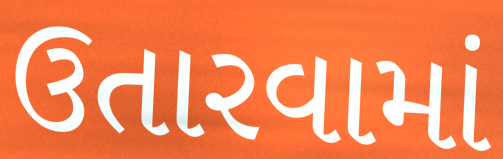
ઉતારવામાં